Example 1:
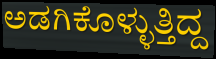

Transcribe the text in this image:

ಅಡಗಿಕೊಳ್ಳುತ್ತಿದ್ದ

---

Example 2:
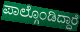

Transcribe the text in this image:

ಪಾಲ್ಗೊಂಡಿದ್ದಾರೆ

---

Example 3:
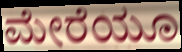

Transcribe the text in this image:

ಮೇರೆಯೂ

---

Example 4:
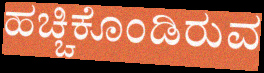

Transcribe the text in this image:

ಹಚ್ಚಿಕೊಂಡಿರುವ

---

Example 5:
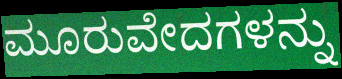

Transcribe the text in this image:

ಮೂರುವೇದಗಳನ್ನು